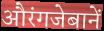
औरंगजेबानें